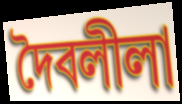
দৈবলীলা